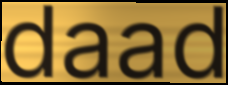
daad